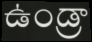
ఉండ్రా